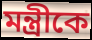
মন্ত্রীকে